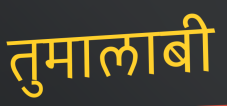
तुमालाबी